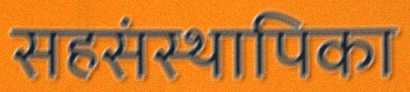
सहसंस्थापिका